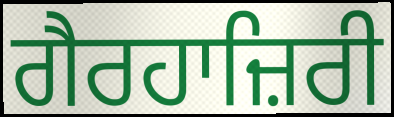
ਗੈਰਹਾਜ਼ਿਰੀ